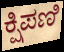
ಕ್ಷಿಪಣಿ